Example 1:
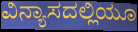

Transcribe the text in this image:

ವಿನ್ಯಾಸದಲ್ಲಿಯೂ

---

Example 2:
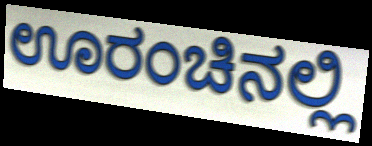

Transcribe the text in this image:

ಊರಂಚಿನಲ್ಲಿ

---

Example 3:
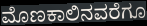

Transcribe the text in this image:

ಮೊಣಕಾಲಿನವರೆಗೂ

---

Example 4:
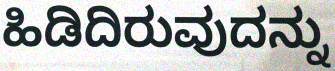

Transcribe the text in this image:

ಹಿಡಿದಿರುವುದನ್ನು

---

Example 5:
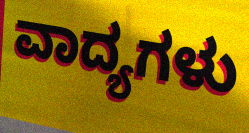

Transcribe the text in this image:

ವಾದ್ಯಗಳು